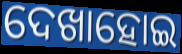
ଦେଖାହୋଇ